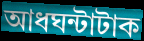
আধঘন্টাটাক